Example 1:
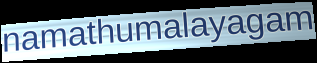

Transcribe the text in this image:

namathumalayagam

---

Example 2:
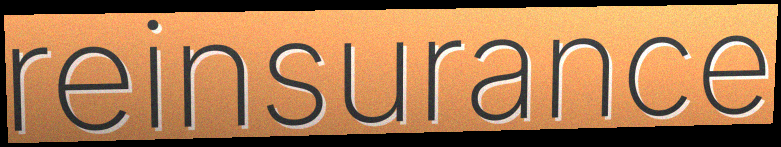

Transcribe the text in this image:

reinsurance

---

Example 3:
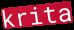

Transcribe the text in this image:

krita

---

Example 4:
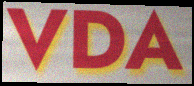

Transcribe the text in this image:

VDA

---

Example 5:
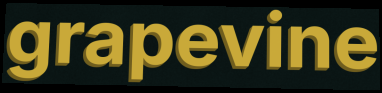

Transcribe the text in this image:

grapevine